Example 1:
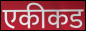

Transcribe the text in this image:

एकीकड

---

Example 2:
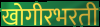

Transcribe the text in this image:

खोगीरभरती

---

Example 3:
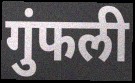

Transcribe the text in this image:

गुंफली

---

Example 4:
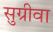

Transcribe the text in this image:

सुग्रीवा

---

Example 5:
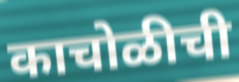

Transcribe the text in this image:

काचोळीची